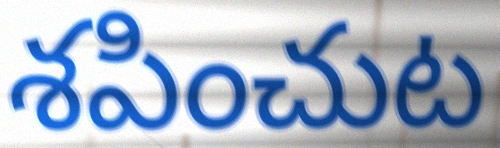
శపించుట